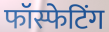
फॉस्फेटिंग